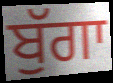
ਬੁੱਗਾ